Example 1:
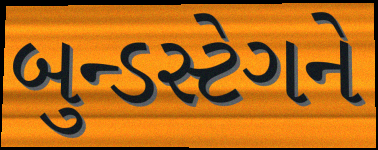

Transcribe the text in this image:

બુન્ડસ્ટેગને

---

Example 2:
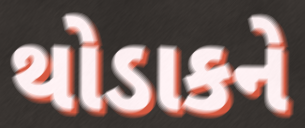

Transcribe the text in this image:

થોડાકને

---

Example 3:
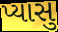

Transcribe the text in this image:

પ્યાસુ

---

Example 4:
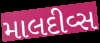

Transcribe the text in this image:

માલદીવ્સ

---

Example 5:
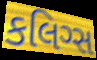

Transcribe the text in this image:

કલિગ્સ